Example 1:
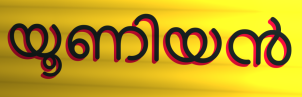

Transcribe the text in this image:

യൂണിയൻ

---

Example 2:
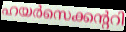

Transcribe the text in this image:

ഹയർസെക്കന്ററി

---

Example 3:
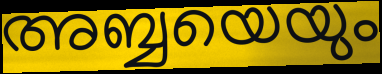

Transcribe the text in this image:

അബ്ബയെയും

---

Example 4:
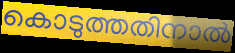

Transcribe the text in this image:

കൊടുത്തതിനാൽ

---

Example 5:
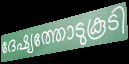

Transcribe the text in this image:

ദേഷ്യത്തോടുകൂടി